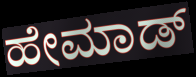
ಹೇಮಾಡ್